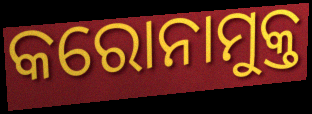
କରୋନାମୁକ୍ତ